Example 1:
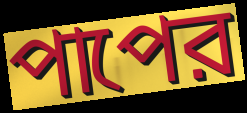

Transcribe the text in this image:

পাপের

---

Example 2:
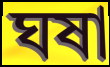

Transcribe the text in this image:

ঘষা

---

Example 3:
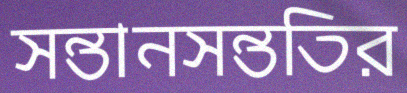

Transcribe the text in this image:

সন্তানসন্ততির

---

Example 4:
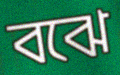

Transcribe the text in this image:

বঝে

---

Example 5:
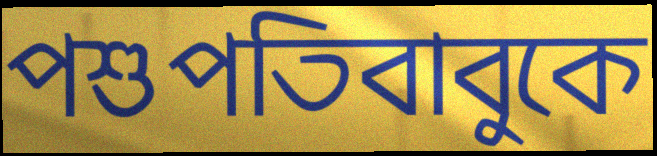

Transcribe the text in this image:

পশুপতিবাবুকে